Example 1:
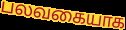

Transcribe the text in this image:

பலவகையாக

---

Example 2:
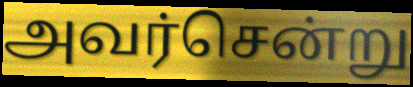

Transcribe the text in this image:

அவர்சென்று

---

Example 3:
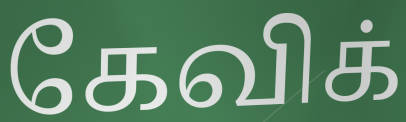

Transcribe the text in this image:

கேவிக்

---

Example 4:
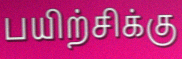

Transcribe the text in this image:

பயிற்சிக்கு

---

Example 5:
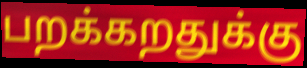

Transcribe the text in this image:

பறக்கறதுக்கு